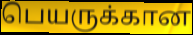
பெயருக்கான